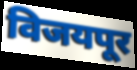
विजयपूर